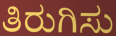
ತಿರುಗಿಸು